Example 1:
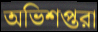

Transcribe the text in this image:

অভিশপ্তরা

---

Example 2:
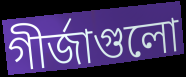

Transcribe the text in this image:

গীর্জাগুলো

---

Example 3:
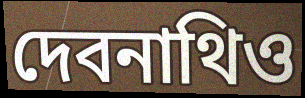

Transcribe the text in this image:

দেবনাথিও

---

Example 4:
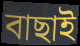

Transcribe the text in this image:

বাছাই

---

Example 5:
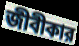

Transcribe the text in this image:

জীবীকার